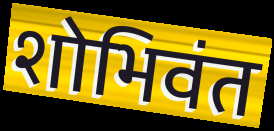
शोभिवंत